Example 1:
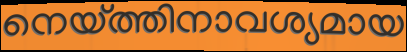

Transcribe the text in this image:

നെയ്ത്തിനാവശ്യമായ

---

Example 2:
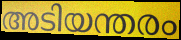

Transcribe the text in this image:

അടിയന്തരം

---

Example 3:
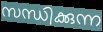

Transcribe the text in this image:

സന്ധിക്കുന്ന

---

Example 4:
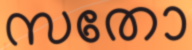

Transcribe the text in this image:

സതോ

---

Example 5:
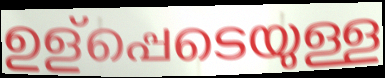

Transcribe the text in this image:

ഉള്പ്പെടെയുള്ള